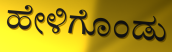
ಹೇಳಿಗೊಂಡು